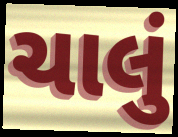
ચાલું